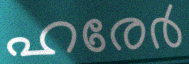
ഹരേർ